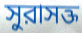
সুরাসক্ত